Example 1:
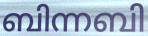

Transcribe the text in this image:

ബിന്നബി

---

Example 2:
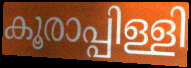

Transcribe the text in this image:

കൂരാപ്പിള്ളി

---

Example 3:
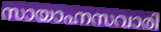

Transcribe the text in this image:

സായാഹ്നസവാരി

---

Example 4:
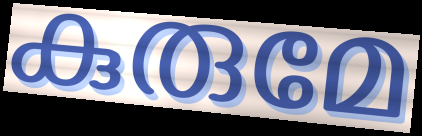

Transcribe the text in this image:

കുരുമേ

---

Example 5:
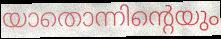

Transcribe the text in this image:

യാതൊന്നിന്റെയും